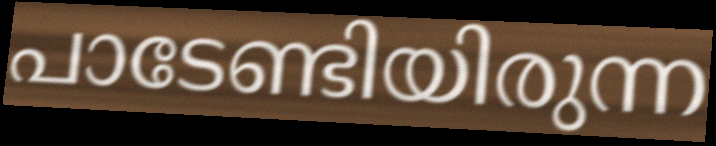
പാടേണ്ടിയിരുന്ന